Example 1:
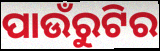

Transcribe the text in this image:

ପାଉଁରୁଟିର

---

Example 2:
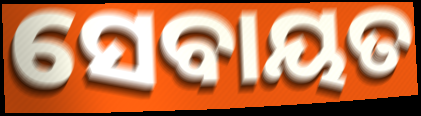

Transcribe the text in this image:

ସେବାୟତ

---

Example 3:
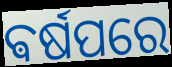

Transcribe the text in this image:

ଵର୍ଷପରେ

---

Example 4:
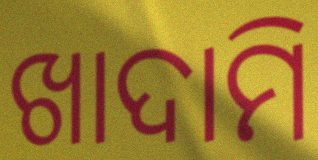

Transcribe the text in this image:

ଖାଦାମି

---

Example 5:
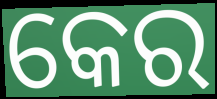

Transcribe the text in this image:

କେର